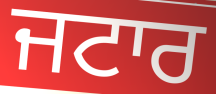
ਜਟਾਰ